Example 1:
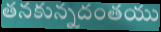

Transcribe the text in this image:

తనకున్నదంతయు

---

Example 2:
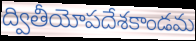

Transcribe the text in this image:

ద్వితీయోపదేశకాండమ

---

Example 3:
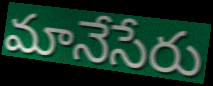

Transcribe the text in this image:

మానేసేరు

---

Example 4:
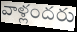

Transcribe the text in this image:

వాళ్లందరు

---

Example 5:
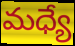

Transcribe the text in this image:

మధ్యే